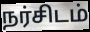
நர்சிடம்